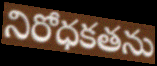
నిరోధకతను